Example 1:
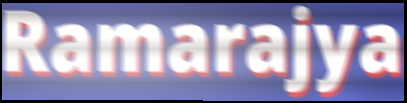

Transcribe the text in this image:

Ramarajya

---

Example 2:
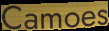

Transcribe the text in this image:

Camoes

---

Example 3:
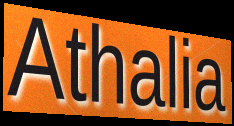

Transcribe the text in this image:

Athalia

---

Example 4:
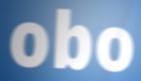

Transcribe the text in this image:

obo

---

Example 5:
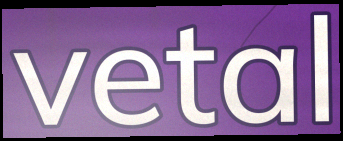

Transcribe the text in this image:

vetal